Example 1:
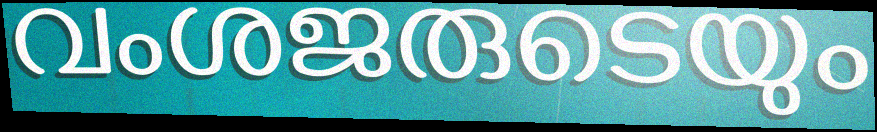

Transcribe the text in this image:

വംശജരുടെയും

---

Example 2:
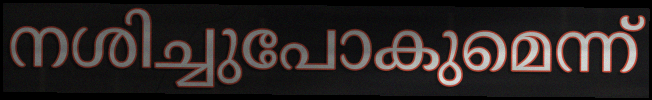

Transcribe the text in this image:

നശിച്ചുപോകുമെന്ന്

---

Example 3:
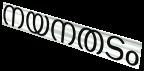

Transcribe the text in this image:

നയനതടം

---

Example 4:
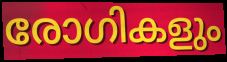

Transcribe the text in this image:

രോഗികളും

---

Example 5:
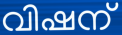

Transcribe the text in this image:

വിഷന്